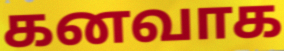
கனவாக